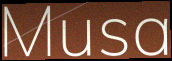
Musa